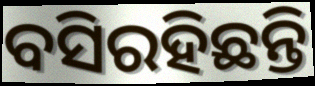
ବସିରହିଛନ୍ତି